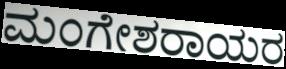
ಮಂಗೇಶರಾಯರ